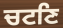
ਚਟਣਿ